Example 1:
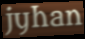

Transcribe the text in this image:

jyhan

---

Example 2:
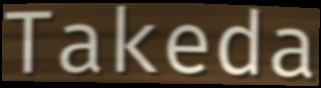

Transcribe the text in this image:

Takeda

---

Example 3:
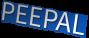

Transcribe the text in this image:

PEEPAL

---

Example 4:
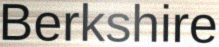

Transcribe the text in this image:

Berkshire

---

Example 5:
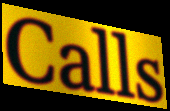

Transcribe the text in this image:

Calls